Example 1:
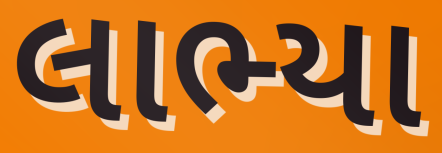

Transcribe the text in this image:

લાભ્યા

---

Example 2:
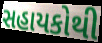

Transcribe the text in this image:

સહાયકોથી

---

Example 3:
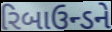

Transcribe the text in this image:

રિબાઉન્ડને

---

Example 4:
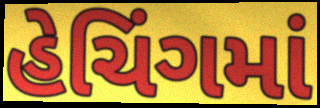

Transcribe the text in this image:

હેચિંગમાં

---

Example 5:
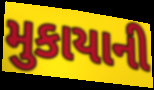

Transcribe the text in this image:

મુકાયાની